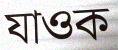
যাওক